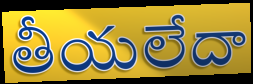
తీయలేదా